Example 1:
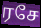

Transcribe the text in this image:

ரசே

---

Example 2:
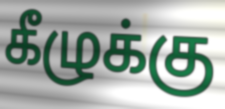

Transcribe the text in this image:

கீழுக்கு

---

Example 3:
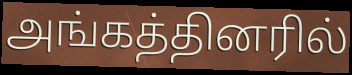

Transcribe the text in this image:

அங்கத்தினரில்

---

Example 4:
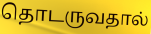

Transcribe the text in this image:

தொடருவதால்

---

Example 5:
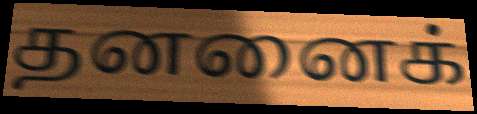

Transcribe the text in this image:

தனனைக்